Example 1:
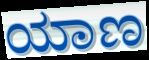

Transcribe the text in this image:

ಯಾಣ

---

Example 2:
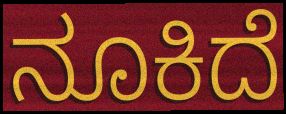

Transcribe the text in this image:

ನೂಕಿದೆ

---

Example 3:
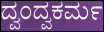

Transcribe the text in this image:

ದ್ವಂದ್ವಕರ್ಮ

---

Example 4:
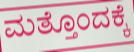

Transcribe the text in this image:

ಮತ್ತೊಂದಕ್ಕೆ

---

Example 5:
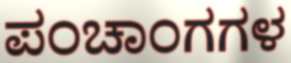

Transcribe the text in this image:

ಪಂಚಾಂಗಗಳ